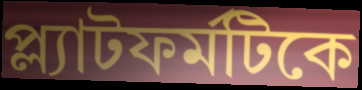
প্ল্যাটফর্মটিকে